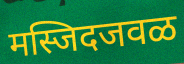
मस्जिदजवळ